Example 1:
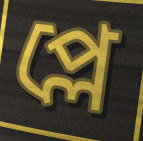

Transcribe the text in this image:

প্লে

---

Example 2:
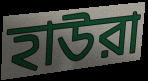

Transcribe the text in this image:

হাউরা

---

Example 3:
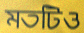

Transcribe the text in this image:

মতটিও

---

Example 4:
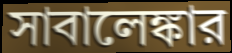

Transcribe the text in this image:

সাবালেঙ্কার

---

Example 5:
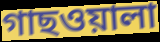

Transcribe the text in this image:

গাছওয়ালা